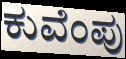
ಕುವೆಂಪು